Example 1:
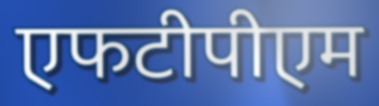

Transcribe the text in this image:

एफटीपीएम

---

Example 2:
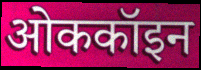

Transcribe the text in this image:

ओककॉइन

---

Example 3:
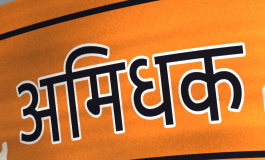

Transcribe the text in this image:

अमिधक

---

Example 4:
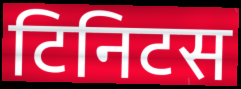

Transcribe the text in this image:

टिनिटस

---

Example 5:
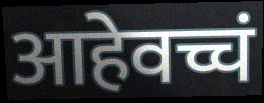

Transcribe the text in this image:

आहेवच्चं